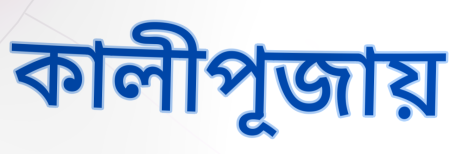
কালীপূজায়